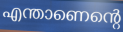
എന്താണെന്റെ